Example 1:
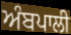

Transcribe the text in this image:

ਅੰਬਪਾਲੀ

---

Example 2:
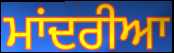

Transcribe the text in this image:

ਮਾਂਦਰੀਆ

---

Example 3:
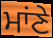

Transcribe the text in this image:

ਮਾਂਣੇ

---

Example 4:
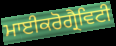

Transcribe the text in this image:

ਮਾਈਕਰੋਗ੍ਰੈਵਿਟੀ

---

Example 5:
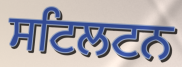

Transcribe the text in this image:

ਸਟਿਲਟਨ